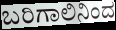
ಬರಿಗಾಲಿನಿಂದ